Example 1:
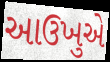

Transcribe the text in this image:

આઉખુએ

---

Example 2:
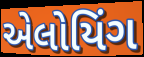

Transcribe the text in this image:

એલોયિંગ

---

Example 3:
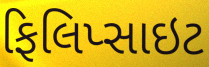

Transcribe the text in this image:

ફિલિપ્સાઇટ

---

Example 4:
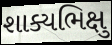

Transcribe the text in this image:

શાક્યભિક્ષુ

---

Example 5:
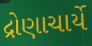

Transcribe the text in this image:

દ્રોણાચાર્યે